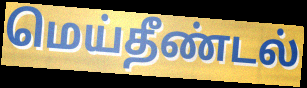
மெய்தீண்டல்